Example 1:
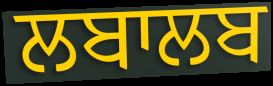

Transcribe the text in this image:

ਲਬਾਲਬ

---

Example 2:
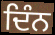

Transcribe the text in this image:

ਦਿੰਨ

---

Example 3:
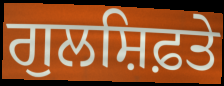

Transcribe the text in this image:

ਗੁਲਸ਼ਿਫ਼ਤੇ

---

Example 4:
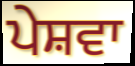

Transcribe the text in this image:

ਪੇਸ਼ਵਾ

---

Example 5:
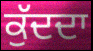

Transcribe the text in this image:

ਕੁੱਦਦਾ